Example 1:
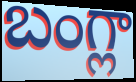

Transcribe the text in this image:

బంగ్లా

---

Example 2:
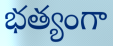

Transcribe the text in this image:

భత్యంగా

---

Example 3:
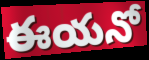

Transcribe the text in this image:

ఈయనో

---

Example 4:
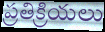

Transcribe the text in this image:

ప్రతిక్రియలు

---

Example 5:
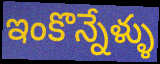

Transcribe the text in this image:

ఇంకొన్నేళ్ళు